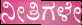
ನೀತಿಗಳೇ